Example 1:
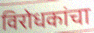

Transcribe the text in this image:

विरोधकांचा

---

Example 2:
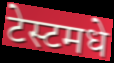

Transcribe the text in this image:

टेस्टमधे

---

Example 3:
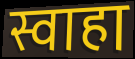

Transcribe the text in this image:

स्वाहा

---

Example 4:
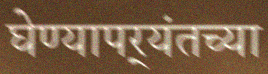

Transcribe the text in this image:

घेण्यापर्यंतच्या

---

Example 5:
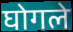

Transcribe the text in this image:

घोगले